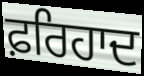
ਫ਼ਰਿਹਾਦ